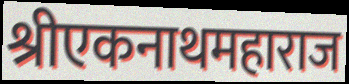
श्रीएकनाथमहाराज